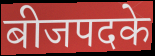
बीजपदके